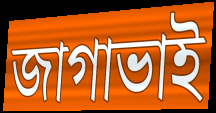
জাগাভাই